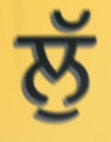
ਲੁੱ